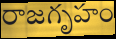
రాజగృహం